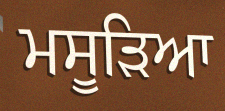
ਮਸੂੜਿਆ